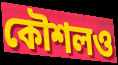
কৌশলও